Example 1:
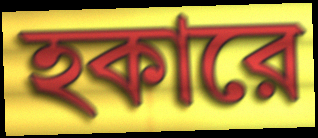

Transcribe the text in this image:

হকারে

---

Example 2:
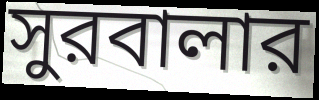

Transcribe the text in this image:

সুরবালার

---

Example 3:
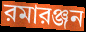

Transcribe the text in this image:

রমারঞ্জন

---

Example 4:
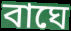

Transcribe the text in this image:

বাঘে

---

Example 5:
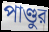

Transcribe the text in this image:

পাণ্ডুর